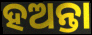
ହଅନ୍ତା